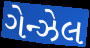
ગેન્ઝેલ